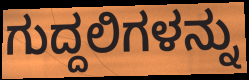
ಗುದ್ದಲಿಗಳನ್ನು